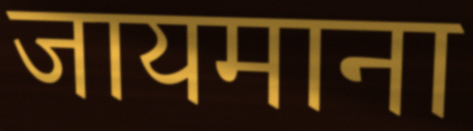
जायमाना